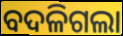
ବଦଳିଗଲା